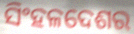
ସିଂହଳଦେଶର